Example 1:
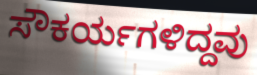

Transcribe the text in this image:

ಸೌಕರ್ಯಗಳಿದ್ದವು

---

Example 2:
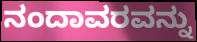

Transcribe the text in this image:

ನಂದಾವರವನ್ನು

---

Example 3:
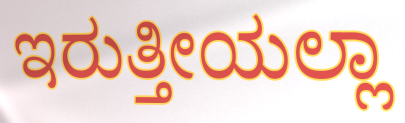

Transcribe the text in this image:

ಇರುತ್ತೀಯಲ್ಲಾ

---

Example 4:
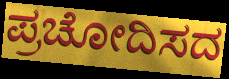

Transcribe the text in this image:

ಪ್ರಚೋದಿಸದ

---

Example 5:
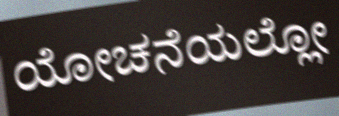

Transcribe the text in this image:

ಯೋಚನೆಯಲ್ಲೋ